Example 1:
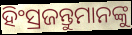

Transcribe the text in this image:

ହିଂସ୍ରଜନ୍ତୁମାନଙ୍କୁ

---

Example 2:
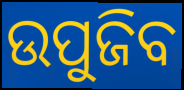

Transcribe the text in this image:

ଉପୁଜିବ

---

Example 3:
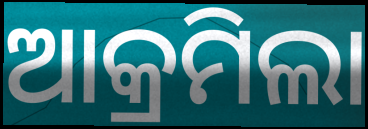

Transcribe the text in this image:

ଆକ୍ରମିଲା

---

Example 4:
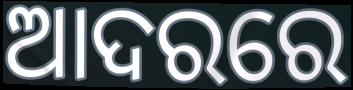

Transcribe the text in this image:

ଆଦରରେ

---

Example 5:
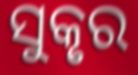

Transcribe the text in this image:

ସୁକୃର